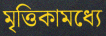
মৃত্তিকামধ্যে